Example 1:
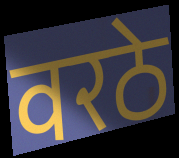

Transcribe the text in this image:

वरठे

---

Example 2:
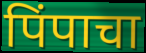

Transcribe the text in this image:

पिंपाचा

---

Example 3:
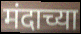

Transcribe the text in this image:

मंदाच्या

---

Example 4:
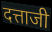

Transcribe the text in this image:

दत्ताजी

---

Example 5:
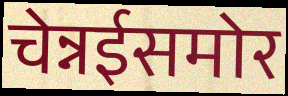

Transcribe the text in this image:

चेन्नईसमोर